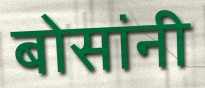
बोसांनी